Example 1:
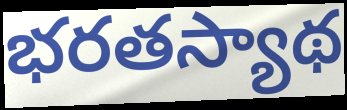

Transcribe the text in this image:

భరతస్యాథ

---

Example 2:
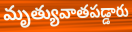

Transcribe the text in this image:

మృత్యువాతపడ్డారు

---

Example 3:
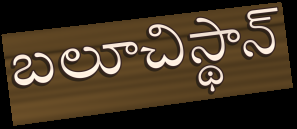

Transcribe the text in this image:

బలూచిస్థాన్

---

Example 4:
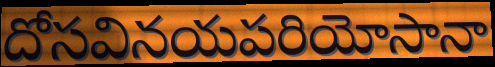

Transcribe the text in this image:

దోసవినయపరియోసానా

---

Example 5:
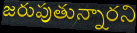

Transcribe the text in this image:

జరుపుతున్నారని